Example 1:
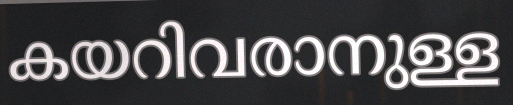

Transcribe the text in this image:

കയറിവരാനുള്ള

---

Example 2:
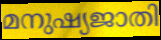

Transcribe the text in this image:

മനുഷ്യജാതി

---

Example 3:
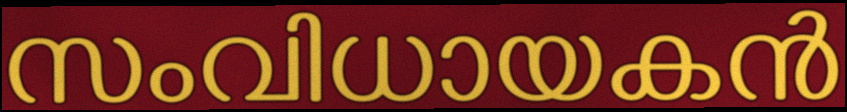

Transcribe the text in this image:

സംവിധായകൻ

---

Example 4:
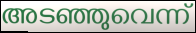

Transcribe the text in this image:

അടഞ്ഞുവെന്ന്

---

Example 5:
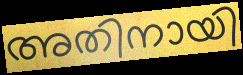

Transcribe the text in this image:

അതിനായി